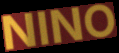
NINO